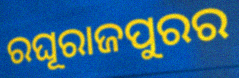
ରଘୂରାଜପୁରର